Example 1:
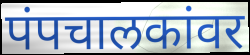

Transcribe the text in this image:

पंपचालकांवर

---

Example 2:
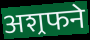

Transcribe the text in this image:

अश्रफने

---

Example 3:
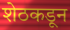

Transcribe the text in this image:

शेठकडून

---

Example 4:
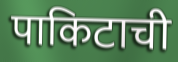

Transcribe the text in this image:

पाकिटाची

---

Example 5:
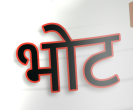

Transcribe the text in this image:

भोट